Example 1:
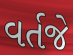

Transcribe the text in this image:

વર્તજે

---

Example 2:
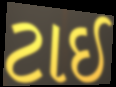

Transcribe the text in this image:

ટાઈ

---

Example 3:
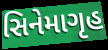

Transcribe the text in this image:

સિનેમાગૃહ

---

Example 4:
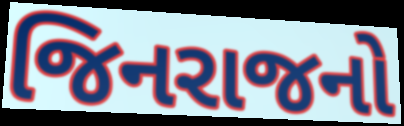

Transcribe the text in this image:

જિનરાજનો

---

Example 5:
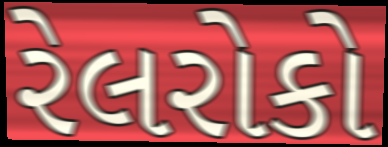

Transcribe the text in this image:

રેલરોકો